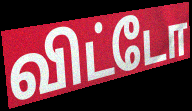
விட்டோ